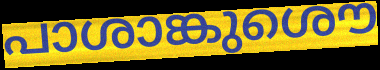
പാശാങ്കുശൌ